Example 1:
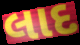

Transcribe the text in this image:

લાદ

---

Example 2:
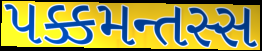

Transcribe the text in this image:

પક્કમન્તસ્સ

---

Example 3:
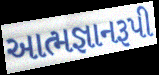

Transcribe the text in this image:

આત્મજ્ઞાનરૂપી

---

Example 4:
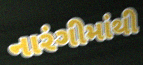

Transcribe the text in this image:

નારંગીમાંથી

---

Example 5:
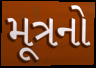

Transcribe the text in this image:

મૂત્રનો